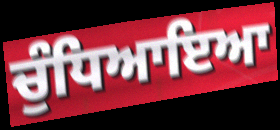
ਚੁੰਧਿਆਇਆ